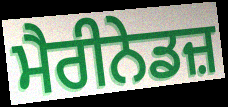
ਮੈਰੀਨੇਡਜ਼